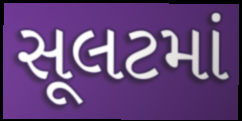
સૂલટમાં